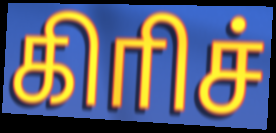
கிரிச்